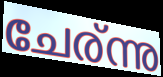
ചേര്ന്നു